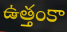
ఉత్తంకా